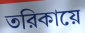
তরিকায়ে